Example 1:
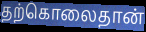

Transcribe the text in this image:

தற்கொலைதான்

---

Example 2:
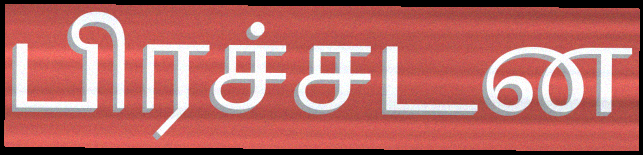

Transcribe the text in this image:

பிரச்சடன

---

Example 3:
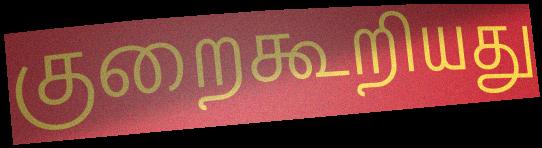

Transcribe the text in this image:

குறைகூறியது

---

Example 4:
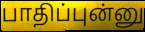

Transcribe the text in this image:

பாதிப்புன்னு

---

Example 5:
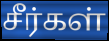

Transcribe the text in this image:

சீர்கள்